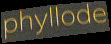
phyllode